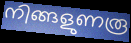
നിങ്ങളുണരൂ